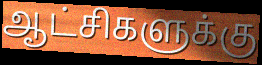
ஆட்சிகளுக்கு